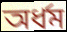
অর্ধম